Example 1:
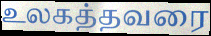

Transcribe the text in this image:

உலகத்தவரை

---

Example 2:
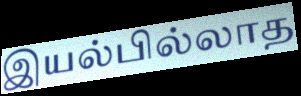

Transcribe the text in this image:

இயல்பில்லாத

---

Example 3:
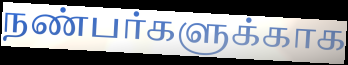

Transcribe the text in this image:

நண்பர்களுக்காக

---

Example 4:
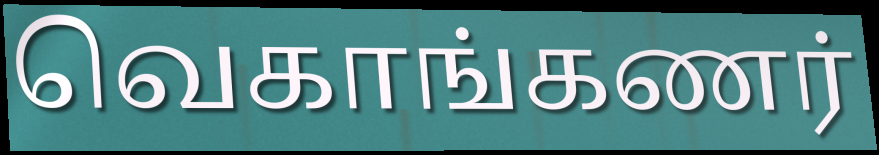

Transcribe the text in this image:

வெகாங்கணர்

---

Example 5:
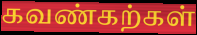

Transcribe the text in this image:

கவண்கற்கள்